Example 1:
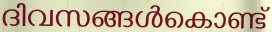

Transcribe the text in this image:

ദിവസങ്ങൾകൊണ്ട്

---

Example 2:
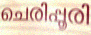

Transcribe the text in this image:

ചെരിപ്പൂരി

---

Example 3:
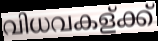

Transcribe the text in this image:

വിധവകള്ക്ക്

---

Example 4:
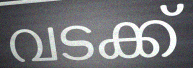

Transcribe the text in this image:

വടക്ക്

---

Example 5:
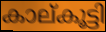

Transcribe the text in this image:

കാല്കൂട്ടി